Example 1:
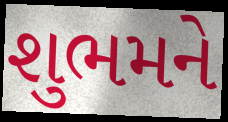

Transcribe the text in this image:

શુભમને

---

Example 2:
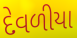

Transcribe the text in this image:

દેવળીયા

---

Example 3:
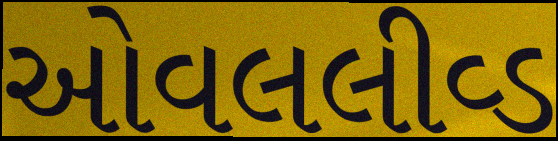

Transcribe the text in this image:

ઓવલલીવ્ડ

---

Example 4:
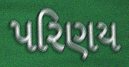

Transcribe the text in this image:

પરિણય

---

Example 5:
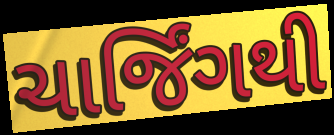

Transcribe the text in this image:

ચાર્જિંગથી